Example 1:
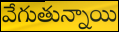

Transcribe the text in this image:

వేగుతున్నాయి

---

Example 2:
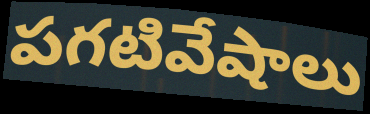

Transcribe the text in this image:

పగటివేషాలు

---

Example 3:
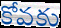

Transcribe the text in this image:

కోవకు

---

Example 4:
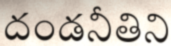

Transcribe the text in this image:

దండనీతిని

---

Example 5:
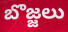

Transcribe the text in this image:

బొజ్జలు